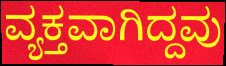
ವ್ಯಕ್ತವಾಗಿದ್ದವು